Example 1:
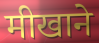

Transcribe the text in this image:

मीखाने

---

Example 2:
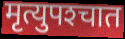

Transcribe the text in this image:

मृत्युपश्‍चात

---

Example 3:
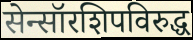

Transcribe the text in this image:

सेन्सॉरशिपविरुद्ध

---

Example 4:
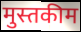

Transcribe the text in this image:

मुस्तकीम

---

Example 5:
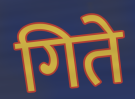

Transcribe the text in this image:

गिते